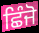
ਛਿੰਜੋ